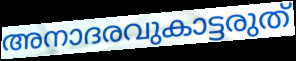
അനാദരവുകാട്ടരുത്